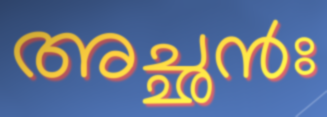
അച്ഛൻഃ